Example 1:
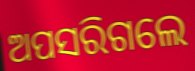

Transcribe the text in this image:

ଅପସରିଗଲେ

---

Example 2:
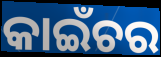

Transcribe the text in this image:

କାଇଁଚର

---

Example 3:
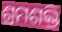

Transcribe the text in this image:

ଶ୍ରମଶକ୍ତି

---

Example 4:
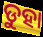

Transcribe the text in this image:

ଡୁହା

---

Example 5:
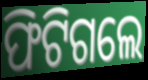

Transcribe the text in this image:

ଫିଟିଗଲେ